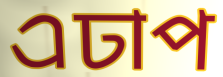
এঢাপ